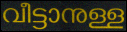
വീട്ടാനുള്ള